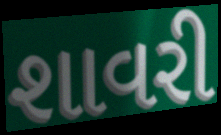
શાવરી